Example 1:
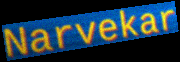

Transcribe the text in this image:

Narvekar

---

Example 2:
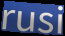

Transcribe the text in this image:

rusi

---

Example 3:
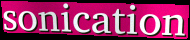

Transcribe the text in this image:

sonication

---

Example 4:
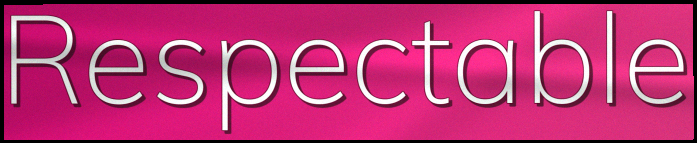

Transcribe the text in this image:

Respectable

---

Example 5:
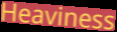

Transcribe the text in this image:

Heaviness